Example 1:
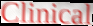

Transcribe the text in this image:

Clinical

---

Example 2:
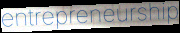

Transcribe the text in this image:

entrepreneurship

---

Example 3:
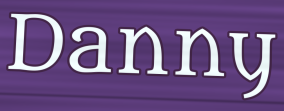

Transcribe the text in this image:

Danny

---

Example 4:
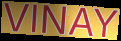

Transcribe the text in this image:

VINAY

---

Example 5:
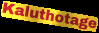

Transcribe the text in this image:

Kaluthotage